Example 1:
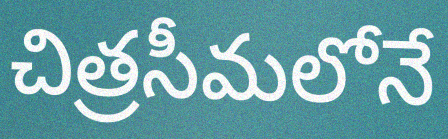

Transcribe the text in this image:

చిత్రసీమలోనే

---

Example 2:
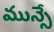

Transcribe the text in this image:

మున్సే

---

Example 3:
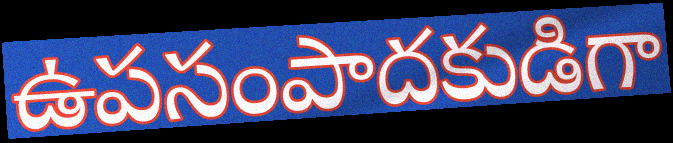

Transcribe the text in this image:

ఉపసంపాదకుడిగా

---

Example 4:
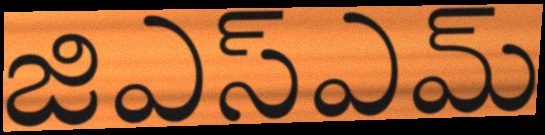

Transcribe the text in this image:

జిఎస్ఎమ్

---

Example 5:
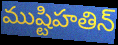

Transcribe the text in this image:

ముష్టిహతిన్